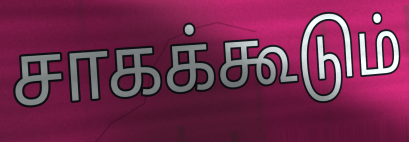
சாகக்கூடும்